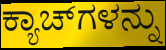
ಕ್ಯಾಚ್‌ಗಳನ್ನು